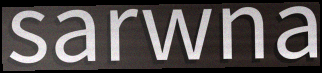
sarwna